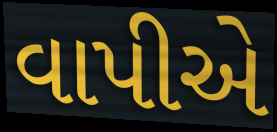
વાપીએ